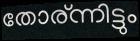
തോര്ന്നിട്ടും